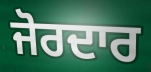
ਜੋਰਦਾਰ